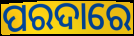
ପରଦାରେ